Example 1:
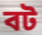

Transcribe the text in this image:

বট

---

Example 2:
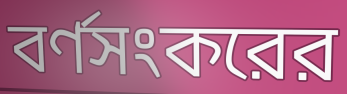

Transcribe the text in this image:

বর্ণসংকরের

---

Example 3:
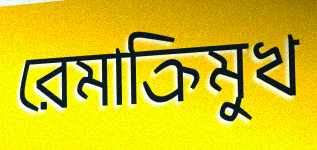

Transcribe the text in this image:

রেমাক্রিমুখ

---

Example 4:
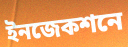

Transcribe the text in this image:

ইনজেকশনে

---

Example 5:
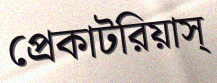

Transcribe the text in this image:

প্রেকাটরিয়াস্